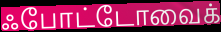
ஃபோட்டோவைக்